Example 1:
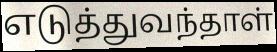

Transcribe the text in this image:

எடுத்துவந்தாள்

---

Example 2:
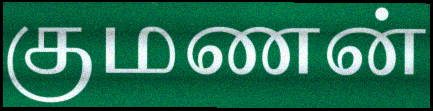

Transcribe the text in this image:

குமணன்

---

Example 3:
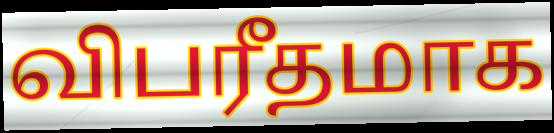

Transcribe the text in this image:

விபரீதமாக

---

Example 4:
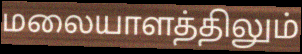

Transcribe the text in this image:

மலையாளத்திலும்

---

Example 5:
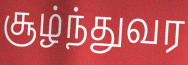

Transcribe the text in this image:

சூழ்ந்துவர